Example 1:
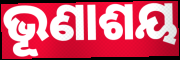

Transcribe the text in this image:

ଭୂଣାଶୟ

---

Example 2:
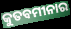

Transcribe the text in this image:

କୁତବମୀନାର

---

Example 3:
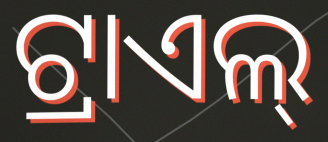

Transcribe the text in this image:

ଟ୍ରାଏଲ୍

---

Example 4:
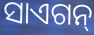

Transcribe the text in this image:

ସାଏଗନ୍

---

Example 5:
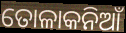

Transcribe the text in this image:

ତୋଳାକନିଆଁ